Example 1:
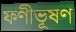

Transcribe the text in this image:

ফণীভূষণ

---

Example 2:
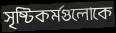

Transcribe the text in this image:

সৃষ্টিকর্মগুলোকে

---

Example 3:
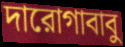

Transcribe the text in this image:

দারোগাবাবু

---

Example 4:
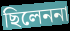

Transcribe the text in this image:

ছিলেননা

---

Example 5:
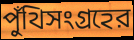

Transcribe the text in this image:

পুঁথিসংগ্রহের